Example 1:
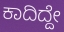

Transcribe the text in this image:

ಕಾದಿದ್ದೇ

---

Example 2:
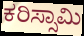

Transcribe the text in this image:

ಕರಿಸ್ಸಾಮಿ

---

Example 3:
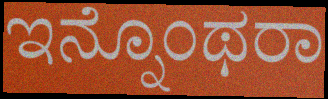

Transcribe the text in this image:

ಇನ್ನೊಂಥರಾ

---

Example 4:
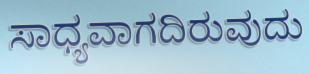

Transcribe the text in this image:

ಸಾಧ್ಯವಾಗದಿರುವುದು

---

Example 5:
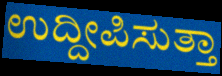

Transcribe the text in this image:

ಉದ್ದೀಪಿಸುತ್ತಾ